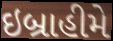
ઇબ્રાહીમે